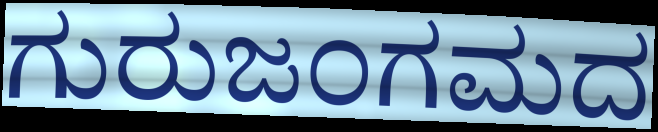
ಗುರುಜಂಗಮದ